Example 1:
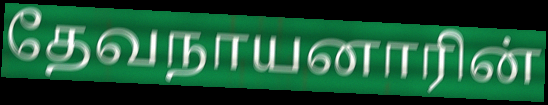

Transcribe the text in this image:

தேவநாயனாரின்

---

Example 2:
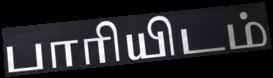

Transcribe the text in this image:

பாரியிடம்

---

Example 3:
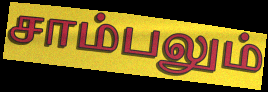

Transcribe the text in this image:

சாம்பலும்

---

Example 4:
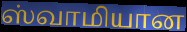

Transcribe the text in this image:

ஸ்வாமியான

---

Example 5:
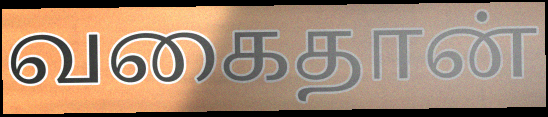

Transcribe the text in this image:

வகைதான்